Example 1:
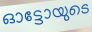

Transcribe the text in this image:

ഓട്ടോയുടെ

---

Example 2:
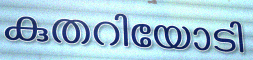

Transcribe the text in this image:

കുതറിയോടി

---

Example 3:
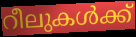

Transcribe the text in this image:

റീലുകൾക്ക്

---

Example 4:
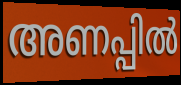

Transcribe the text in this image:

അണപ്പിൽ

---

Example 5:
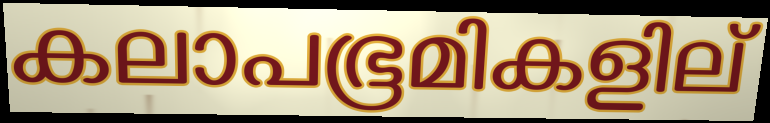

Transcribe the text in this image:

കലാപഭൂമികളില്